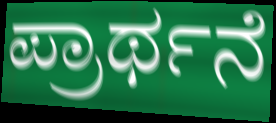
ಪ್ರಾರ್ಥನೆ